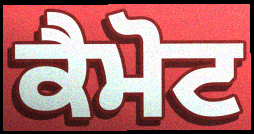
ਕੈਮੋਟ